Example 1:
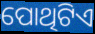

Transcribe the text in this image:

ପୋଥିଟିଏ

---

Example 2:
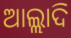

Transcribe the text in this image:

ଆଲ୍ଲାଦି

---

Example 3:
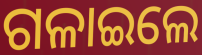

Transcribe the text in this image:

ଗଳାଇଲେ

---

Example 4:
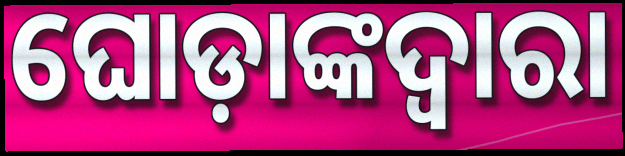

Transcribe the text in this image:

ଘୋଡ଼ାଙ୍କଦ୍ୱାରା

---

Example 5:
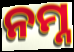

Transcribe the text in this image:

ନମ୍ନ